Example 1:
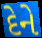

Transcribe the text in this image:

દેને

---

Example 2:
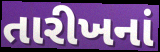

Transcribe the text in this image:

તારીખનાં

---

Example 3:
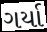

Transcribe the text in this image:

ગર્યા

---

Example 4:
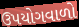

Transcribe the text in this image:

ઉપયોગવાળો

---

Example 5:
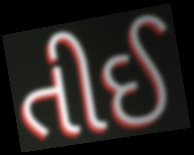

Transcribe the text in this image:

તીઈ